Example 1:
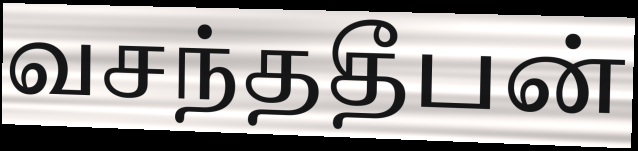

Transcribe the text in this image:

வசந்ததீபன்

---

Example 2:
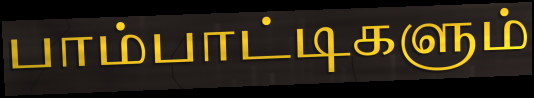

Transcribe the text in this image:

பாம்பாட்டிகளும்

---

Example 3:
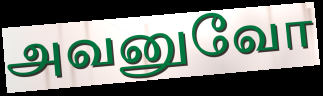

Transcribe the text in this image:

அவனுவோ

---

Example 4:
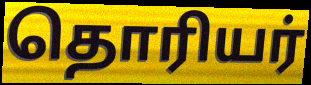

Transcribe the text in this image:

தொரியர்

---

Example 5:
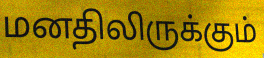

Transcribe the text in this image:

மனதிலிருக்கும்